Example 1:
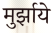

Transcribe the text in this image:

मुर्झाये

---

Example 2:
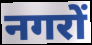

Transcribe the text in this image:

नगरों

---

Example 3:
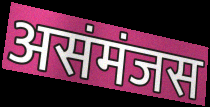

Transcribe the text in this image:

असंमंजस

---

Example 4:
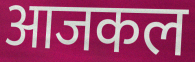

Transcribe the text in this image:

आजकल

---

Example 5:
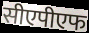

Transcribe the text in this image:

सीएपीएफ